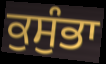
ਕੁਸੁੰਭਾ